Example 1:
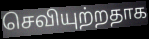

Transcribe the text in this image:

செவியுற்றதாக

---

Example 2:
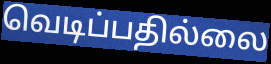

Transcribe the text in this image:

வெடிப்பதில்லை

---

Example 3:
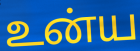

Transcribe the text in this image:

உன்ய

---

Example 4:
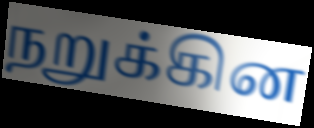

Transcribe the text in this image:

நறுக்கின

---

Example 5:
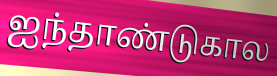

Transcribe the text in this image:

ஐந்தாண்டுகால